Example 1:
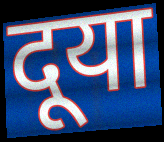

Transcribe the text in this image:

दूया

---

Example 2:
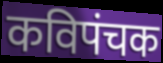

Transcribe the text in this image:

कविपंचक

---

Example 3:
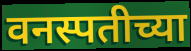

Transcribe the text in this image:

वनस्पतीच्या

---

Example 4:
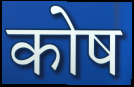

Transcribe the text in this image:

कोष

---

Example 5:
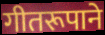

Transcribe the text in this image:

गीतरूपाने